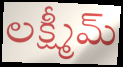
లక్ష్మీమ్